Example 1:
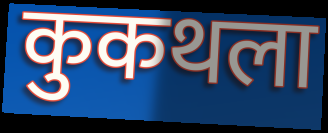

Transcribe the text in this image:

कुकथला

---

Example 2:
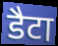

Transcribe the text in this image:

डैटा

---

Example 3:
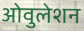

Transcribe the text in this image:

ओवुलेशन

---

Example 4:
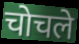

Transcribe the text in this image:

चोचले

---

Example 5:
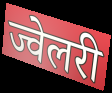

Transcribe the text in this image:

ज्वेलरी